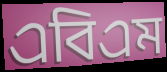
এবিএম